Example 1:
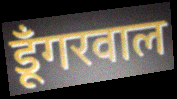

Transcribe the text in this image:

डूँगरवाल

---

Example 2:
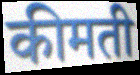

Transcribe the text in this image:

कीमती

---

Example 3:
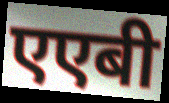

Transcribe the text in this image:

एएबी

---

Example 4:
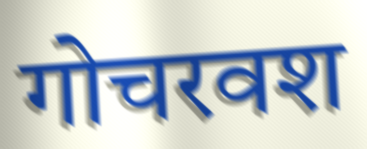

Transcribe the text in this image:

गोचरवश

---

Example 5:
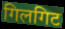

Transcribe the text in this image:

गिलगिट